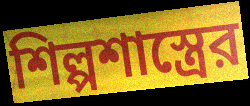
শিল্পশাস্ত্রের